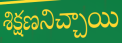
శిక్షణనిచ్చాయి